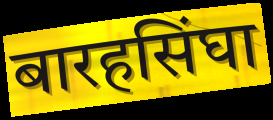
बारहसिंघा